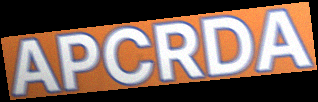
APCRDA